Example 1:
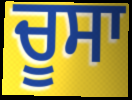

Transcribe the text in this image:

ਚੂਸਾ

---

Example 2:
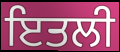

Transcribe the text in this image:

ਇਤਲੀ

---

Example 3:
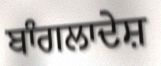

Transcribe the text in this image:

ਬਾੰਗਲਾਦੇਸ਼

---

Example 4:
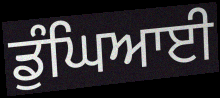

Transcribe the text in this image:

ਡੁੰਘਿਆਈ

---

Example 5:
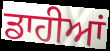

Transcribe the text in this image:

ਡਾਹੀਆਂ